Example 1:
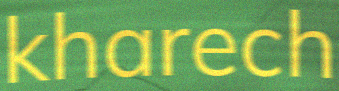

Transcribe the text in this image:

kharech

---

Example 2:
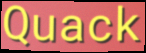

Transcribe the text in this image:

Quack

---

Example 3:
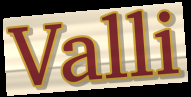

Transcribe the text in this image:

Valli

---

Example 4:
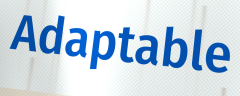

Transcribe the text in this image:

Adaptable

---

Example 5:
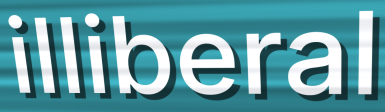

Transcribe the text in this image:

illiberal